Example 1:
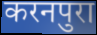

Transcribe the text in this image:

करनपुरा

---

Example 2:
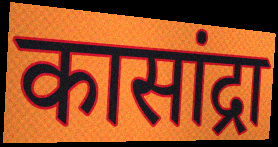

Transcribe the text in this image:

कासांद्रा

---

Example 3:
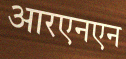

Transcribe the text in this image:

आरएनएन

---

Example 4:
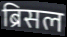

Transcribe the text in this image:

ब्रिसल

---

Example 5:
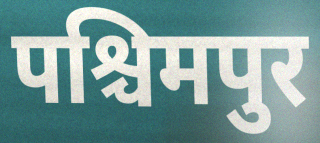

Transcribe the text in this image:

पश्चिमपुर